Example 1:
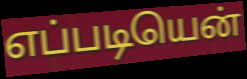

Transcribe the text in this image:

எப்படியென்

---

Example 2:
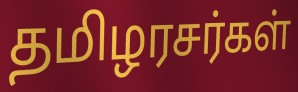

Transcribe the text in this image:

தமிழரசர்கள்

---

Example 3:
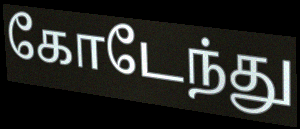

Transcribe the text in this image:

கோடேந்து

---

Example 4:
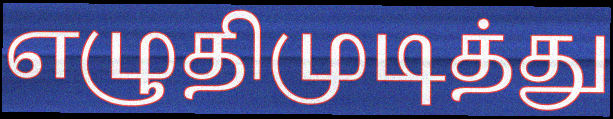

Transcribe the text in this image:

எழுதிமுடித்து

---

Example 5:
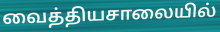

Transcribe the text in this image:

வைத்தியசாலையில்